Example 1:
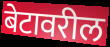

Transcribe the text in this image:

बेटावरील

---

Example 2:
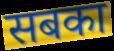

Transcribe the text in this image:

सबका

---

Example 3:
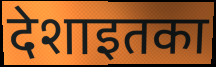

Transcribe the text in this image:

देशाइतका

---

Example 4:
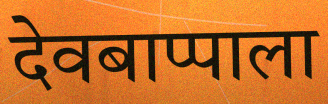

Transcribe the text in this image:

देवबाप्पाला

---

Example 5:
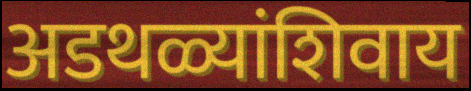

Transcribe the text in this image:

अडथळ्यांशिवाय